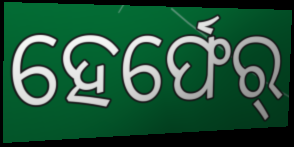
ହେର୍ଫେର୍